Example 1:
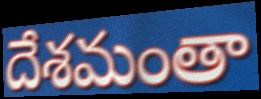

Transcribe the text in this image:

దేశమంతా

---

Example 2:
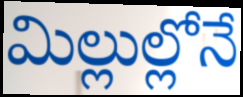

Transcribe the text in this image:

మిల్లుల్లోనే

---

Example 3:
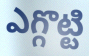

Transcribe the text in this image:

ఎగ్గొట్టి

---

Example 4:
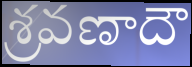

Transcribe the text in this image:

శ్రవణాదౌ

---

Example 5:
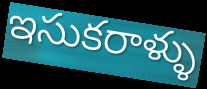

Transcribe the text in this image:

ఇసుకరాళ్ళు